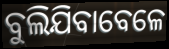
ବୁଲିଯିବାବେଳେ